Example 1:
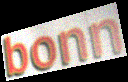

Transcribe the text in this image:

bonn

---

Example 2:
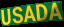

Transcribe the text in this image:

USADA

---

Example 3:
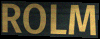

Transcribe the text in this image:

ROLM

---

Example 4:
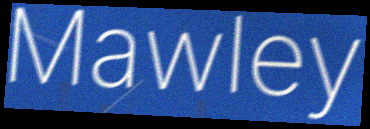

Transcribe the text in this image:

Mawley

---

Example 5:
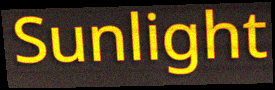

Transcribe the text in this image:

Sunlight